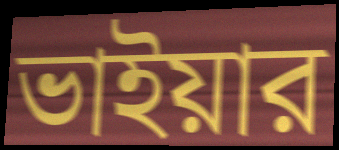
ভাইয়ার